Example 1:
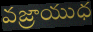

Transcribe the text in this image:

వజ్రాయుధ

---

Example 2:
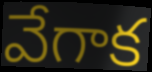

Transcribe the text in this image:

వేగాక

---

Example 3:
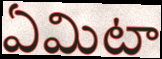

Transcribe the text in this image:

ఏమిటా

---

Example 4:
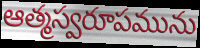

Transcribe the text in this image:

ఆత్మస్వరూపమును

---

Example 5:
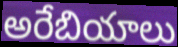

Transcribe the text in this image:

అరేబియాలు